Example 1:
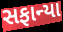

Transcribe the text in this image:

સફાન્યા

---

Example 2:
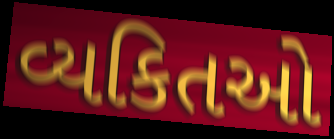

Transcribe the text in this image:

વ્યકિતઓ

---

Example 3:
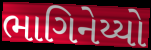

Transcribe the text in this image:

ભાગિનેય્યો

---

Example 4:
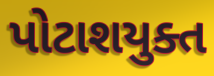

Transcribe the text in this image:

પોટાશયુક્ત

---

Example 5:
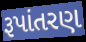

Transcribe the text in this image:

રૂપાંતરણ